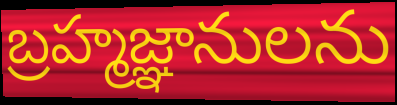
బ్రహ్మజ్ఞానులను